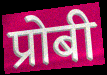
प्रोबी